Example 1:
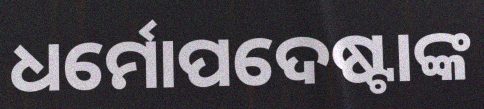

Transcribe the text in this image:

ଧର୍ମୋପଦେଷ୍ଟାଙ୍କ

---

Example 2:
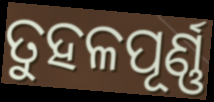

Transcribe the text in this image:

ତୁହଳପୂର୍ଣ୍ଣ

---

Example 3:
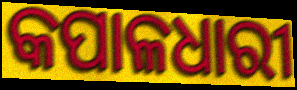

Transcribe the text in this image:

କପାଳଧାରୀ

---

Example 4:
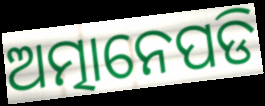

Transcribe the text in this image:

ଅତ୍ମାନେପଡି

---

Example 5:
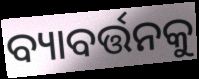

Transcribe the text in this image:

ବ୍ୟାବର୍ତ୍ତନକୁ